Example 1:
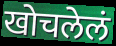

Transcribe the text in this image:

खोचलेलं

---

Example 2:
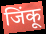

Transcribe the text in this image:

जिंकू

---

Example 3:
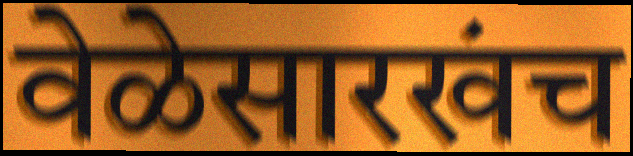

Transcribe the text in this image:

वेळेसारखंच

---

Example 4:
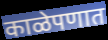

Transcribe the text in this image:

काळेपणात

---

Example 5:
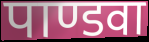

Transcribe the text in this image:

पाण्डवा